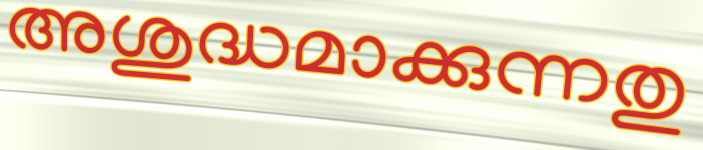
അശുദ്ധമാക്കുന്നതു